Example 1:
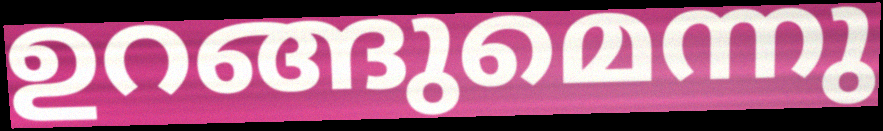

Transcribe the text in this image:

ഉറങ്ങുമെന്നു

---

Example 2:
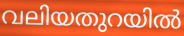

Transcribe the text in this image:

വലിയതുറയിൽ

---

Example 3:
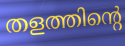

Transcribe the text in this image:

തളത്തിന്റെ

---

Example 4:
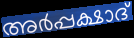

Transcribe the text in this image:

അർപ്പക്ഷാദ്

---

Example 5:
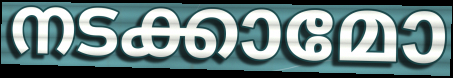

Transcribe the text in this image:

നടക്കാമോ